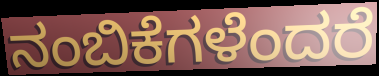
ನಂಬಿಕೆಗಳೆಂದರೆ